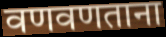
वणवणताना